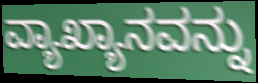
ವ್ಯಾಖ್ಯಾನವನ್ನು